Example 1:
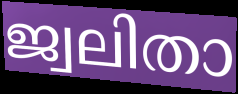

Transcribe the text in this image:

ജ്വലിതാ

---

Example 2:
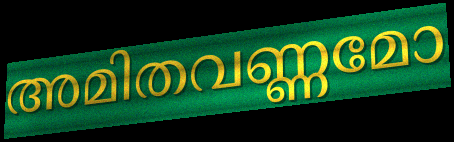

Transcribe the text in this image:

അമിതവണ്ണമോ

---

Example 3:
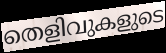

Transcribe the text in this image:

തെളിവുകളുടെ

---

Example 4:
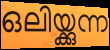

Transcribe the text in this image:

ഒലിയ്ക്കുന്ന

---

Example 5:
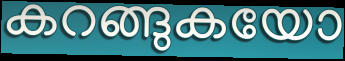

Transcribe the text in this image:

കറങ്ങുകയോ